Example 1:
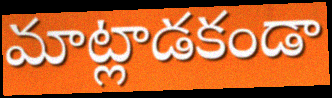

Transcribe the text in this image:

మాట్లాడకండా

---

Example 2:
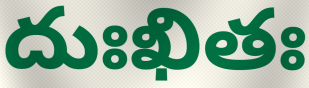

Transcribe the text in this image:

దుఃఖితః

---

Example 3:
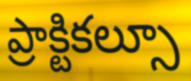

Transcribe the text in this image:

ప్రాక్టికల్సూ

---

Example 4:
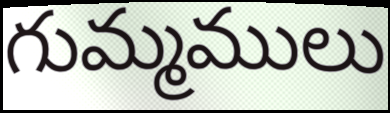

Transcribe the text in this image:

గుమ్మములు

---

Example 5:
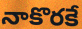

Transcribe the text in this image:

నాకొరకే